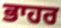
ਭਾਹਰ